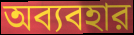
অব্যবহার